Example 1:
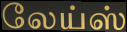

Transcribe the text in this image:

லேய்ஸ்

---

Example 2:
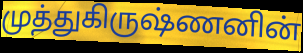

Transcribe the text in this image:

முத்துகிருஷ்ணனின்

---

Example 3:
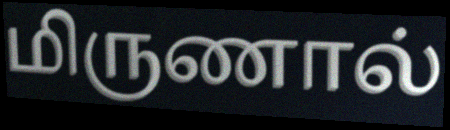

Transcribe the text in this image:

மிருணால்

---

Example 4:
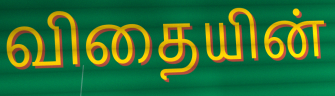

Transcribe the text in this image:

விதையின்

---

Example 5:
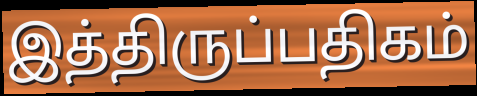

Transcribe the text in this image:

இத்திருப்பதிகம்